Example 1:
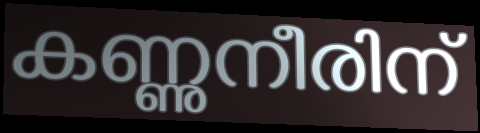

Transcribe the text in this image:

കണ്ണുനീരിന്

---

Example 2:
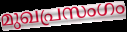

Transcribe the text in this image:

മുഖപ്രസംഗം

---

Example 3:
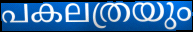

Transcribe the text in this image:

പകലത്രയും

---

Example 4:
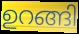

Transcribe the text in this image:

ഉറങ്ങി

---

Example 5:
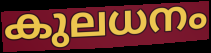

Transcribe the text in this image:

കുലധനം